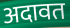
अदावत